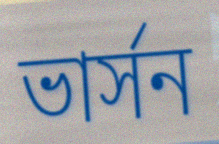
ভার্সন